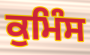
ਕੁਮਿੰਸ